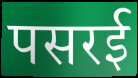
पसरई